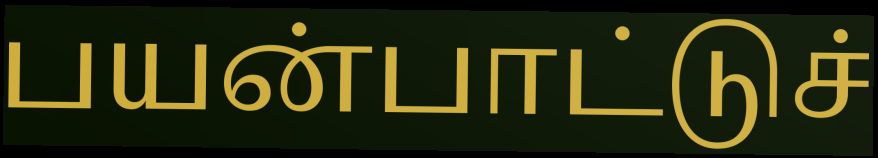
பயன்பாட்டுச்